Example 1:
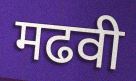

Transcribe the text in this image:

मढवी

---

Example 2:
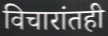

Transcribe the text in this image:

विचारांतही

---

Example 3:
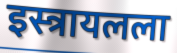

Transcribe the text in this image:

इस्त्रायलला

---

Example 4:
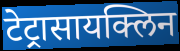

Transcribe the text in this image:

टेट्रासायक्लिन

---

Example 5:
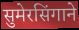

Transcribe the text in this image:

सुमेरसिंगाने